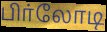
பிர்லோடி